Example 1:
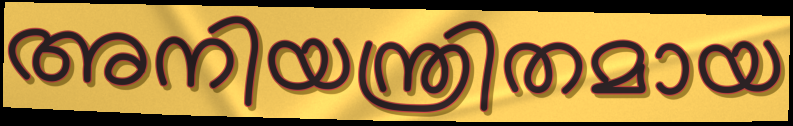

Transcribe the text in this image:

അനിയന്ത്രിതമായ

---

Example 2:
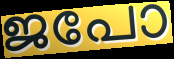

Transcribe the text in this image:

ജപോ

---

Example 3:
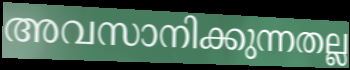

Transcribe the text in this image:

അവസാനിക്കുന്നതല്ല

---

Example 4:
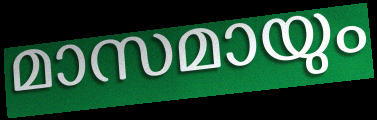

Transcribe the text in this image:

മാസമായും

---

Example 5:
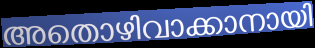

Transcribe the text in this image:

അതൊഴിവാക്കാനായി